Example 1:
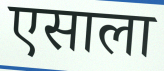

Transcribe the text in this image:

एसाला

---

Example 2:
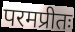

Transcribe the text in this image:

परमप्रीतः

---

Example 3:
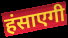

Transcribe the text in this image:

हंसाएगी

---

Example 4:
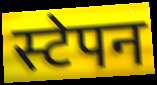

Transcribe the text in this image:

स्टेपन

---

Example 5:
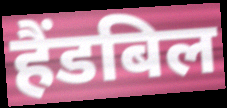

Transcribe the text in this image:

हैंडबिल